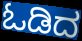
ಓಡಿದ